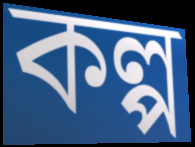
কল্প